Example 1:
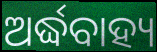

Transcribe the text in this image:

ଅର୍ଦ୍ଧବାହ୍ୟ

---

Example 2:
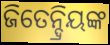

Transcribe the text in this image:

ଜିତେନ୍ଦ୍ରିୟଙ୍କ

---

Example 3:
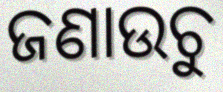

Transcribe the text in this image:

ଜଣାଉଚୁ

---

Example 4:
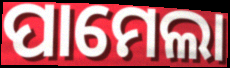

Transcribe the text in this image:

ପାମେଲା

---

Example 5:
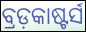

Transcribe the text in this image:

ବ୍ରଡ଼କାଷ୍ଟର୍ସ